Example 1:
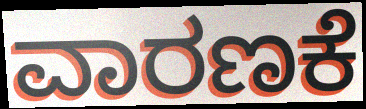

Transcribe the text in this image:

ವಾರಣಕೆ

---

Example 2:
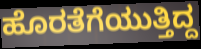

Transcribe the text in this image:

ಹೊರತೆಗೆಯುತ್ತಿದ್ದ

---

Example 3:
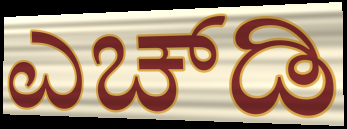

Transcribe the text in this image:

ಎಚ್‍ಡಿ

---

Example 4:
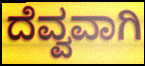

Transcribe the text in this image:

ದೆವ್ವವಾಗಿ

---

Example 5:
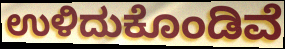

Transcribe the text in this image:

ಉಳಿದುಕೊಂಡಿವೆ